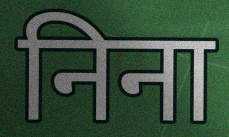
निना